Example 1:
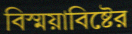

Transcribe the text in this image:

বিস্ময়াবিষ্টের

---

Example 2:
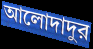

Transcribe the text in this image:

আলোদাদুর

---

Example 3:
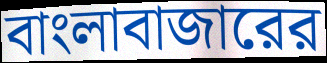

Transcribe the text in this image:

বাংলাবাজারের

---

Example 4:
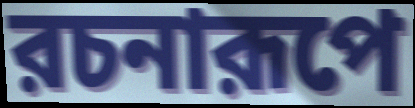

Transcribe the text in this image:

রচনারূপে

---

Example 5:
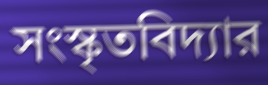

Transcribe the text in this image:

সংস্কৃতবিদ্যার